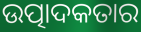
ଉତ୍ପାଦକତାର